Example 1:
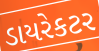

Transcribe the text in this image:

ડાયરેકટર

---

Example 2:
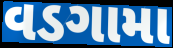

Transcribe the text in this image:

વડગામા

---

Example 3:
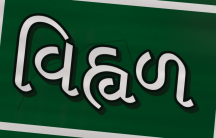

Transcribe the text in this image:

વિહ્વળ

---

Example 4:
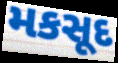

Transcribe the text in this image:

મકસૂદ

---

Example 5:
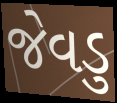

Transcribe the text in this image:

જેવડુ